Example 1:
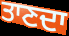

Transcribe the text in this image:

ਤਾਣਦਾ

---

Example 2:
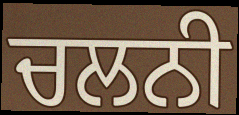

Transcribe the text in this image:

ਚਲਨੀ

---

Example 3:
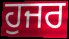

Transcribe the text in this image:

ਹੁਜਰ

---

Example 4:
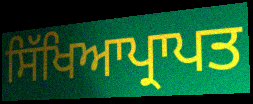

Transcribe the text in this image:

ਸਿੱਖਿਆਪ੍ਰਾਪਤ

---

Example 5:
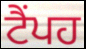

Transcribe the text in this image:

ਟੈਂਪਹ